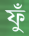
ফুঁ